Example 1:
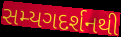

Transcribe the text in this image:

સમ્યગદર્શનથી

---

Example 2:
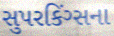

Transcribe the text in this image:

સુપરકિંગ્સના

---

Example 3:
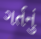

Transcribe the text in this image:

ગર્તનું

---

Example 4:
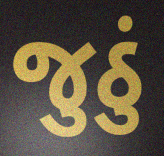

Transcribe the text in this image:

જુઠું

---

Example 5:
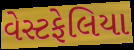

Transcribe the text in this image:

વેસ્ટફેલિયા